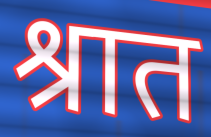
श्रात